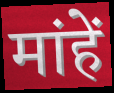
मांहें